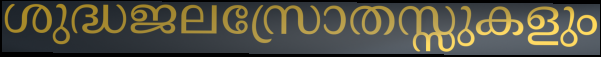
ശുദ്ധജലസ്രോതസ്സുകളും